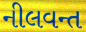
નીલવન્ત